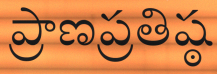
ప్రాణప్రతిష్ఠ